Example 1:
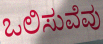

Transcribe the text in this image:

ಒಲಿಸುವೆವು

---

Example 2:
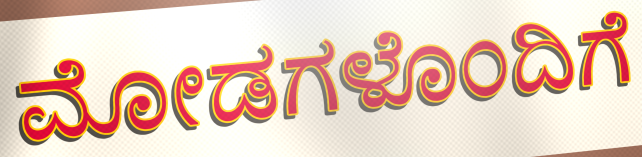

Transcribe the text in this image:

ಮೋಡಗಳೊಂದಿಗೆ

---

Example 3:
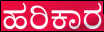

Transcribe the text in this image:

ಹರಿಕಾರ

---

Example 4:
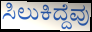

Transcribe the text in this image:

ಸಿಲುಕಿದ್ದೆವು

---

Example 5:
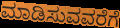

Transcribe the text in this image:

ಮಾಡಿಸುವವರೆಗೆ